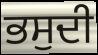
ਭਸੁਦੀ